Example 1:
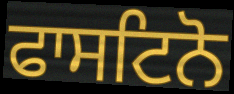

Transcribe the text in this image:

ਫਾਸਟਿਨੋ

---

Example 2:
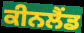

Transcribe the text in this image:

ਕੀਨਲੈਂਡ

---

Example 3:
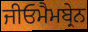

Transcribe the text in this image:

ਜੀਓਮੈਮਬ੍ਰੇਨ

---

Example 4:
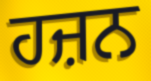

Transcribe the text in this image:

ਹਜ਼ਨ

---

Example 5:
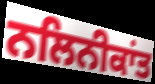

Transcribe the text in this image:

ਨਲਿਨੀਕਾਂਤ